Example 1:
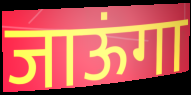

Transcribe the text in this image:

जाऊंगा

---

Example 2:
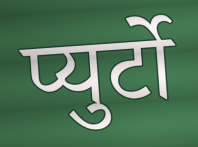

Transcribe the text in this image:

प्युर्टो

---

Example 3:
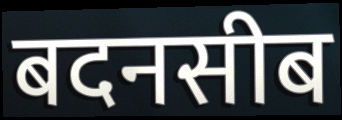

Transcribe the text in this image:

बदनसीब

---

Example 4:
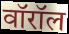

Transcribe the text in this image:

वॉरॉल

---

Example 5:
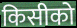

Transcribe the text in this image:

किसीको